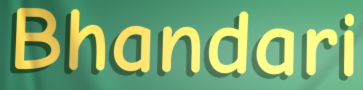
Bhandari